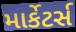
માર્કેટર્સ